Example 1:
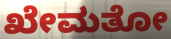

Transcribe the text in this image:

ಖೇಮತೋ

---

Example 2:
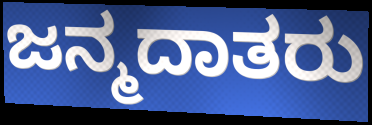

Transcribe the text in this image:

ಜನ್ಮದಾತರು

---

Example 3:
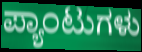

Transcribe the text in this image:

ಪ್ಯಾಂಟುಗಳು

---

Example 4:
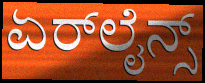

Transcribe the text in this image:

ಏರ್‌ಲೈನ್ಸ್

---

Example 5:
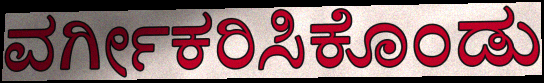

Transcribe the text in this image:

ವರ್ಗೀಕರಿಸಿಕೊಂಡು